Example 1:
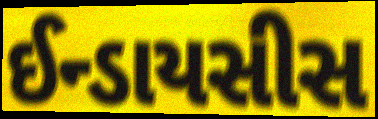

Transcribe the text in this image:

ઈન્ડાયસીસ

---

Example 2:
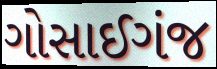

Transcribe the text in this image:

ગોસાઈગંજ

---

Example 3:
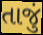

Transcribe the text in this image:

તાજું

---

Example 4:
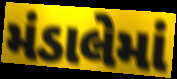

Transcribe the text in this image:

મંડાલેમાં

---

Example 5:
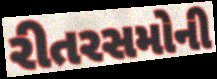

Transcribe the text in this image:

રીતરસમોની